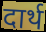
दार्थ